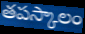
తపస్కాలం